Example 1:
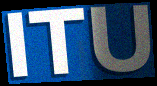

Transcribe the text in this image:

ITU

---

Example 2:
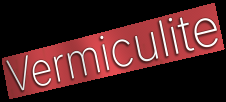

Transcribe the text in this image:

Vermiculite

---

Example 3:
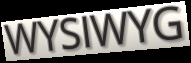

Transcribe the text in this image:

WYSIWYG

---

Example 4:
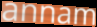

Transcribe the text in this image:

annam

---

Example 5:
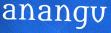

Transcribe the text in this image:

anangu